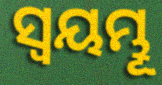
ସ୍ଵୟମ୍ଭୂ